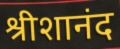
श्रीशानंद